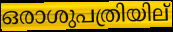
ഒരാശുപത്രിയില്